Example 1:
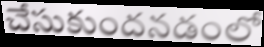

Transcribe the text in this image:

చేసుకుందనడంలో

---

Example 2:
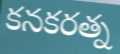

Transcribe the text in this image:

కనకరత్న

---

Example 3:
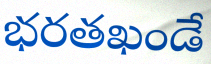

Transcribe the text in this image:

భరతఖండే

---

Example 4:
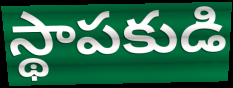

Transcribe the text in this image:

స్థాపకుడి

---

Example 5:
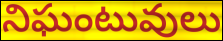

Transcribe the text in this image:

నిఘంటువులు